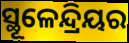
ସ୍ଥୂଳେନ୍ଦ୍ରିୟର